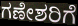
ಗಣೇಶರಿಗೆ